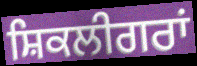
ਸ਼ਿਕਲੀਗਰਾਂ